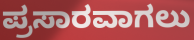
ಪ್ರಸಾರವಾಗಲು